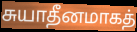
சுயாதீனமாகத்